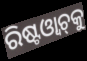
ରିଷ୍ଟଓ୍ୱାଚ୍‍କୁ